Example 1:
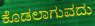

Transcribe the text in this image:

ಕೊಡಲಾಗುವದು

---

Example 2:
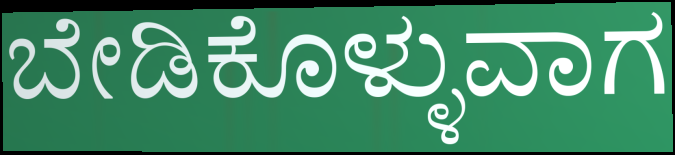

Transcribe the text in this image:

ಬೇಡಿಕೊಳ್ಳುವಾಗ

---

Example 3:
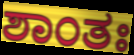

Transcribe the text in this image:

ಶಾಂತಃ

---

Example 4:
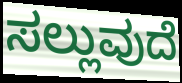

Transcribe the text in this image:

ಸಲ್ಲುವುದೆ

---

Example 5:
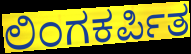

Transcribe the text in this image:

ಲಿಂಗಕರ್ಪಿತ